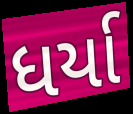
ધર્યા